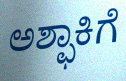
ಅಶ್ಫಾಕಿಗೆ